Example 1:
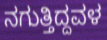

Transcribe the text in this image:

ನಗುತ್ತಿದ್ದವಳ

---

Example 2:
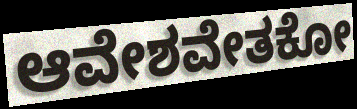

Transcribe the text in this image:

ಆವೇಶವೇತಕೋ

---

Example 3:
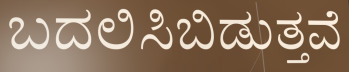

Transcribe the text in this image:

ಬದಲಿಸಿಬಿಡುತ್ತವೆ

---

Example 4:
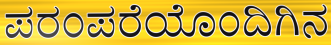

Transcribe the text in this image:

ಪರಂಪರೆಯೊಂದಿಗಿನ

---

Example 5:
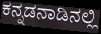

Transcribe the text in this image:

ಕನ್ನಡನಾಡಿನಲ್ಲಿ